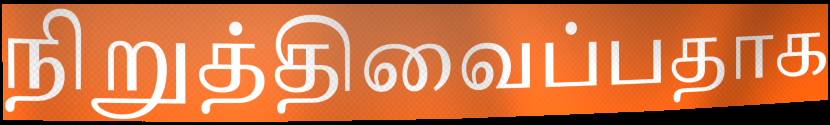
நிறுத்திவைப்பதாக